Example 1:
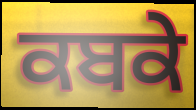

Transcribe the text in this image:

ਕਬਕੇ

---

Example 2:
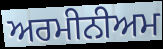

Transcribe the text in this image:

ਅਰਮੀਨੀਅਮ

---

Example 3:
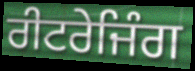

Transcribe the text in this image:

ਰੀਟਰੇਜਿੰਗ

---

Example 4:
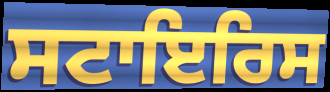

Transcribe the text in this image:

ਸਟਾਇਰਿਸ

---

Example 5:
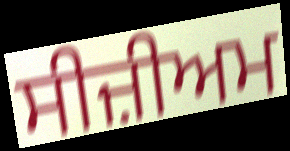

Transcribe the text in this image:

ਸੀਜ਼ੀਅਮ